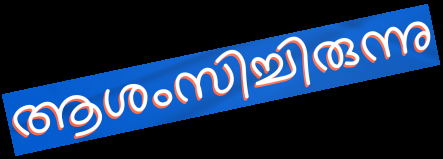
ആശംസിച്ചിരുന്നു